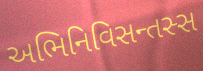
અભિનિવિસન્તસ્સ